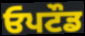
ਓਪਟੌਡ